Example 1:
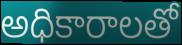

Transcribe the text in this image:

అధికారాలతో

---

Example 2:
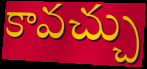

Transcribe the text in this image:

కావచ్చు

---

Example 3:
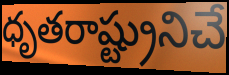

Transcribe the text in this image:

ధృతరాష్ట్రునిచే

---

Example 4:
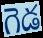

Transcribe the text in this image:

గెడ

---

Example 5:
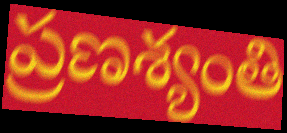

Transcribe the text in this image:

ప్రణశ్యంతి